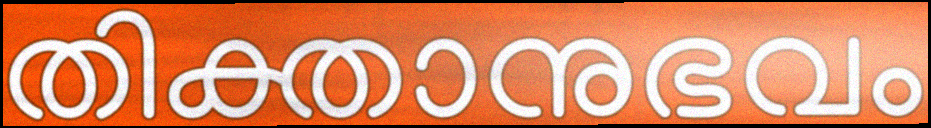
തിക്താനുഭവം